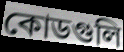
কোডগুলি